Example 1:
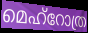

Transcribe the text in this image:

മെഹ്റോത്ര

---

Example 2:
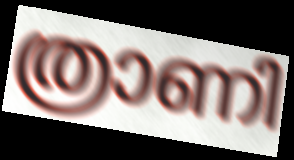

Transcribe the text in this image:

ത്രാണി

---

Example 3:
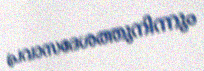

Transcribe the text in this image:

പ്രവാസദേശത്തുനിന്നും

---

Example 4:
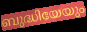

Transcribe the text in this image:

ബുദ്ധിയേയും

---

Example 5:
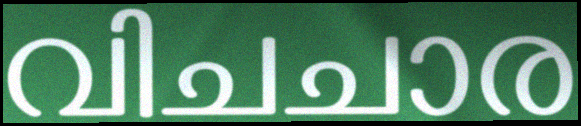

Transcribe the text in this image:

വിചചാര